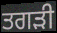
ਤਗੜੀ